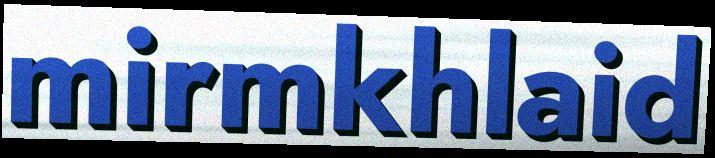
mirmkhlaid